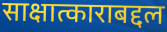
साक्षात्काराबद्दल